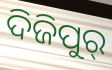
ଦିଜିପୁର୍